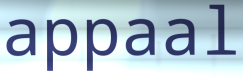
appaal